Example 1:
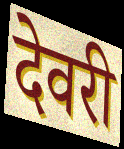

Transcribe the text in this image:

देवरी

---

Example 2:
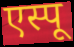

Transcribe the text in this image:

एस्पू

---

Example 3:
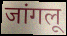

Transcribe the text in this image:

जांगलू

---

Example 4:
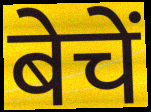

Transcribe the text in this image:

बेचें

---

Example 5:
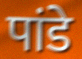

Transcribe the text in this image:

पांडे